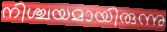
നിശ്ചയമായിരുന്നു